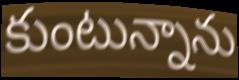
కుంటున్నాను